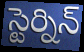
స్టెర్నిన్